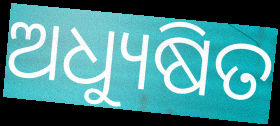
ଅଧ୍ୟୁଷିତ